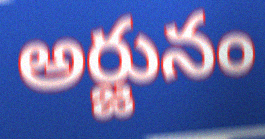
అర్జునం